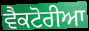
ਵੈਕਟੋਰੀਆ